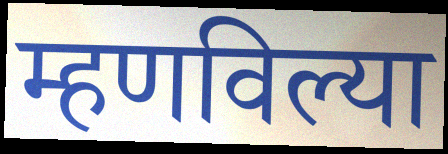
म्हणविल्या